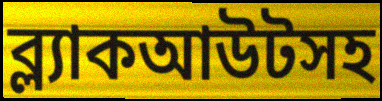
ব্ল্যাকআউটসহ